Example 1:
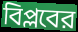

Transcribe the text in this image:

বিপ্লবের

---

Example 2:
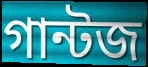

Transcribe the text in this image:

গান্টজ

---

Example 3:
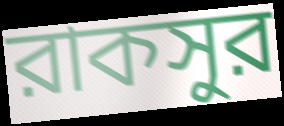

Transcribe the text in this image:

রাকসুর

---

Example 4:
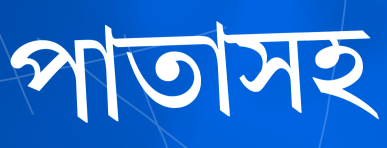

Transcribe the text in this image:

পাতাসহ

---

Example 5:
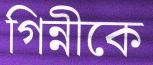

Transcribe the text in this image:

গিন্নীকে